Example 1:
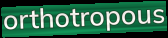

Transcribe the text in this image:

orthotropous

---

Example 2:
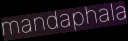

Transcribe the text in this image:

mandaphala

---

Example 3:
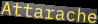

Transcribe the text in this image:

Attarache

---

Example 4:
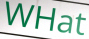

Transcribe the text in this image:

WHat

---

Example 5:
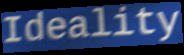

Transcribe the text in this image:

Ideality